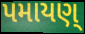
પમાયણ્